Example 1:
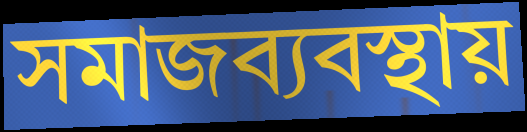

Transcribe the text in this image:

সমাজব্যবস্থায়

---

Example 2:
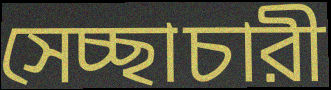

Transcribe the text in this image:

সেচ্ছাচারী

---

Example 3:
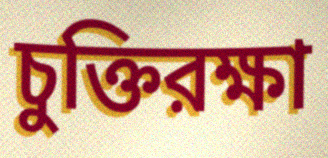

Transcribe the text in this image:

চুক্তিরক্ষা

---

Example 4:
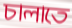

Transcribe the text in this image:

চালাতে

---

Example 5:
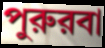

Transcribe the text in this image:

পুরুরবা